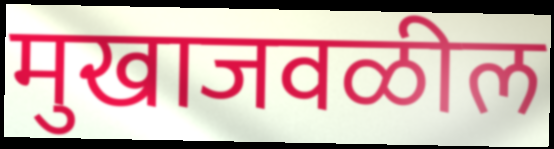
मुखाजवळील